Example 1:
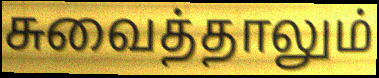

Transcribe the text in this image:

சுவைத்தாலும்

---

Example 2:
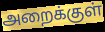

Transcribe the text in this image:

அறைக்குள்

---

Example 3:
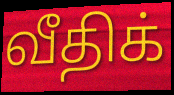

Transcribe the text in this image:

வீதிக்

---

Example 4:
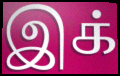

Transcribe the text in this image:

இக்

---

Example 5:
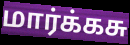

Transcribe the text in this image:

மார்க்கசு